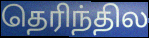
தெரிந்தில